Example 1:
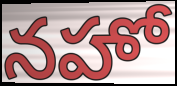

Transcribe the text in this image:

నహో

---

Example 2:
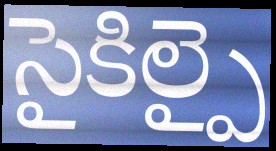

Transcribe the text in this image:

సైకిల్పై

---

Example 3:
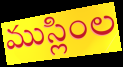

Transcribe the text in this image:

ముస్లింల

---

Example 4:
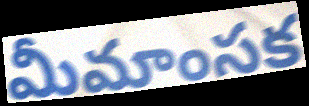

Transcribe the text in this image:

మీమాంసక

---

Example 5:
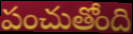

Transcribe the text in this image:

పంచుతోంది